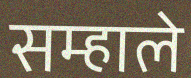
सम्हाले